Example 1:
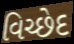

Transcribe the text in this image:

વિચ્છેદ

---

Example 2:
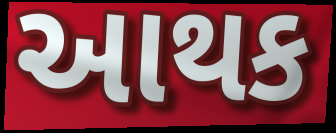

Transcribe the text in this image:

આથક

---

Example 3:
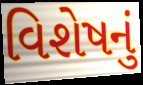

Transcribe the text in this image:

વિશેષનું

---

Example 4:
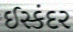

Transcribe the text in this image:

ઈસ્કંદર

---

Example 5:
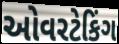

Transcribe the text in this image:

ઓવરટેકિંગ